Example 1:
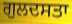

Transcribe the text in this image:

ਗੁਲਦਸਤਾ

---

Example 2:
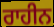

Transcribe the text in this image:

ਰਾਹੀਨ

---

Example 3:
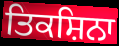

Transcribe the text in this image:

ਤਿਕਸ਼ਿਨਾ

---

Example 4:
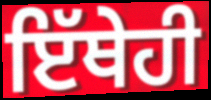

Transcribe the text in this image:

ਇੱਥੇਹੀ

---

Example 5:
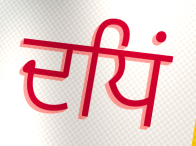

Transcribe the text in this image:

ਦਧਿਂ